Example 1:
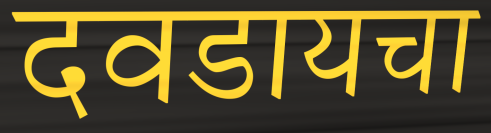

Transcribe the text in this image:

दवडायचा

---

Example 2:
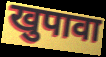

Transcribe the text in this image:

खुपावा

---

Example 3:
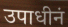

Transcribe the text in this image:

उपाधीनं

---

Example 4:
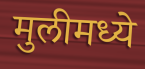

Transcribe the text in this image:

मुलीमध्ये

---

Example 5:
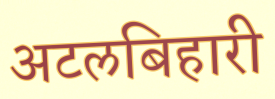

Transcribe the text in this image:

अटलबिहारी